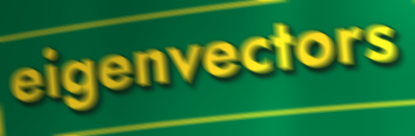
eigenvectors